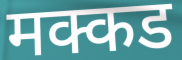
मक्कड